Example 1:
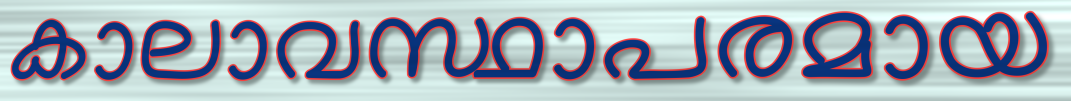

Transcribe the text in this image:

കാലാവസ്ഥാപരമായ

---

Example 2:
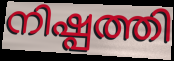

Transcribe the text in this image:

നിഷ്പത്തി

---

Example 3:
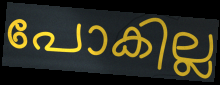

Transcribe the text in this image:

പോകില്ല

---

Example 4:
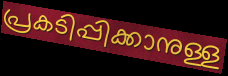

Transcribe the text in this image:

പ്രകടിപ്പിക്കാനുള്ള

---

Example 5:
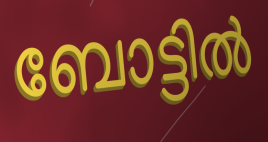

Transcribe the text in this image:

ബോട്ടിൽ